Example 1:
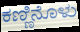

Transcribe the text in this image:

ಕಣ್ಣಿನೊಳು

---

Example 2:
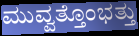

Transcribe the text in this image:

ಮುವ್ವತ್ತೊಂಭತ್ತು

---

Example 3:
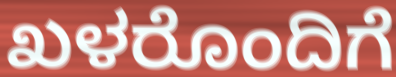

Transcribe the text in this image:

ಖಳರೊಂದಿಗೆ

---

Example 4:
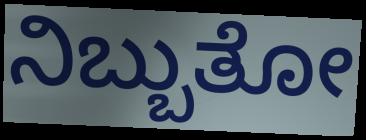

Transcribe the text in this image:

ನಿಬ್ಬುತೋ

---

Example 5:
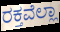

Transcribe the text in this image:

ರಕ್ತವೆಲ್ಲಾ